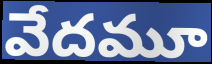
వేదమూ